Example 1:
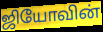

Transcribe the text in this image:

ஜியோவின்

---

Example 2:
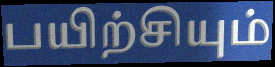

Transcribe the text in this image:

பயிற்சியும்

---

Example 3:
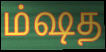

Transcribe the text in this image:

ம்ஷத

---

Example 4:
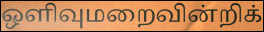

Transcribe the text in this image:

ஒளிவுமறைவின்றிக்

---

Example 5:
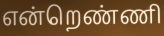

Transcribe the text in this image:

என்றெண்ணி